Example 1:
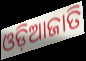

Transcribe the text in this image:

ଓଡ଼ିଆଜାତି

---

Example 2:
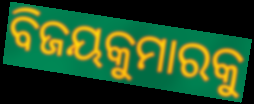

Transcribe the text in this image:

ବିଜୟକୁମାରକୁ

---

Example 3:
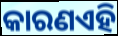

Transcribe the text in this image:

କାରଣଏହି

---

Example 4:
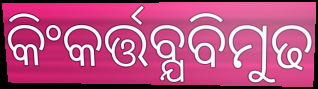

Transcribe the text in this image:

କିଂକର୍ତ୍ତବ୍ଯବିମୁଢ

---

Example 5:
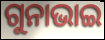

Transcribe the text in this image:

ଗୁନାଭାଇ